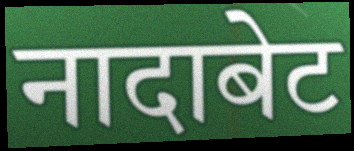
नादाबेट